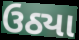
ઉઠ્યા